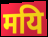
मयि